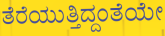
ತೆರೆಯುತ್ತಿದ್ದಂತೆಯೇ